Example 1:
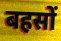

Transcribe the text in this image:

बहसों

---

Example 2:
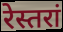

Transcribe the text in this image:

रेस्तरां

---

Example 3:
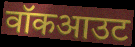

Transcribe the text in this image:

वॉकआउट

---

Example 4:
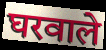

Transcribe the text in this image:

घरवाले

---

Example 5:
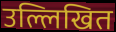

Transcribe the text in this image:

उल्लिखित